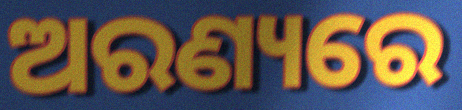
ଅରଣ୍ୟରେ